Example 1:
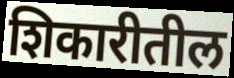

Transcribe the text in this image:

शिकारीतील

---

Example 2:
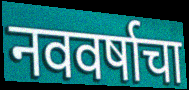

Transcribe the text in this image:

नववर्षाचा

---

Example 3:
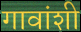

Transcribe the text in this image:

गावांशी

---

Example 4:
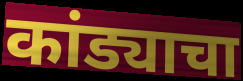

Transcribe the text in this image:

कांड्याचा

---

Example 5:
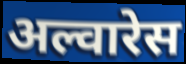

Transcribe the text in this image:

अल्वारेस